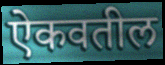
ऐकवतील